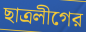
ছাত্রলীগের